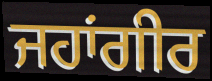
ਜਹਾਂਗੀਰ